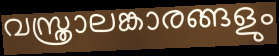
വസ്ത്രാലങ്കാരങ്ങളും